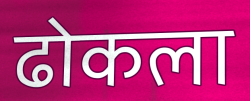
ढोकला